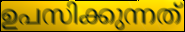
ഉപസിക്കുന്നത്